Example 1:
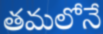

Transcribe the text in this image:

తమలోనే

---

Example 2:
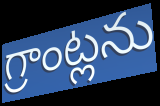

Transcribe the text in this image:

గ్రాంట్లను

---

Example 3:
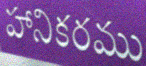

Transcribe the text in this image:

హానికరము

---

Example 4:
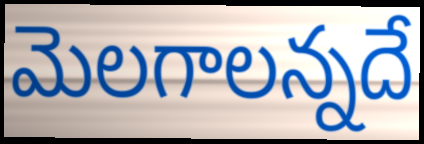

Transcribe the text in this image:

మెలగాలన్నదే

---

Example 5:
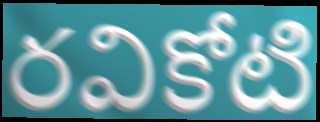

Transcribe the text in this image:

రవికోటి